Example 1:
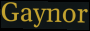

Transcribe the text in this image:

Gaynor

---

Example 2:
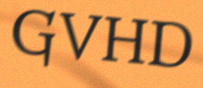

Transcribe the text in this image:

GVHD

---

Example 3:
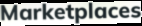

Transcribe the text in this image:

Marketplaces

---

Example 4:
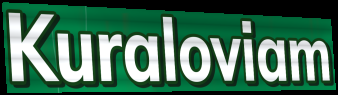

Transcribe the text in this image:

Kuraloviam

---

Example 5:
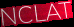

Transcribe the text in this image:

NCLAT